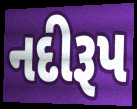
નદીરૂપ